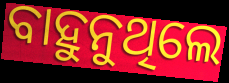
ବାହୁନୁଥିଲେ